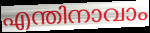
എന്തിനാവാം